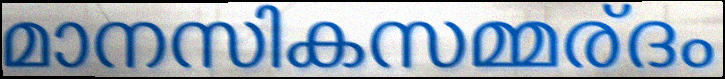
മാനസികസമ്മര്ദം